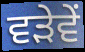
ਵੜੇਵੇਂ